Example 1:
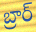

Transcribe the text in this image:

బ్రార్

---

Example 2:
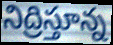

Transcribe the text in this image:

నిద్రిస్తూన్న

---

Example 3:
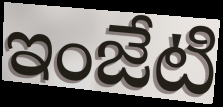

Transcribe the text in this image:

ఇంజేటి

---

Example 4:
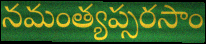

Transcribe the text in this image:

నమంత్యప్సరసాం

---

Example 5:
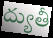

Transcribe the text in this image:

ద్యుతీ